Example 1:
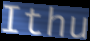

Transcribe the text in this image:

Ithu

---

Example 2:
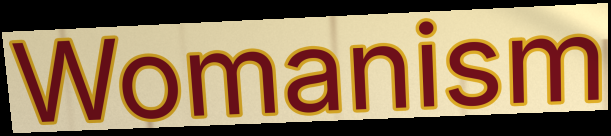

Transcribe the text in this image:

Womanism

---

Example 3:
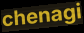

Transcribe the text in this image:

chenagi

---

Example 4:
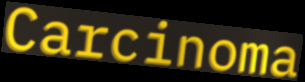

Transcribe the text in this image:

Carcinoma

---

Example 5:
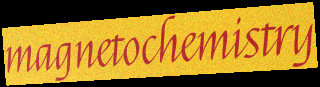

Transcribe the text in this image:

magnetochemistry